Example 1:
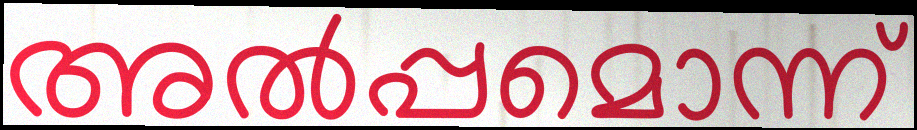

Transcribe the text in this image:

അൽപ്പമൊന്ന്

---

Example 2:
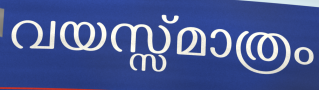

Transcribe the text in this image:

വയസ്സ്മാത്രം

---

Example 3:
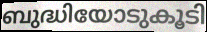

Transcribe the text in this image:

ബുദ്ധിയോടുകൂടി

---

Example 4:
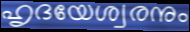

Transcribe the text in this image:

ഹൃദയേശ്വരനും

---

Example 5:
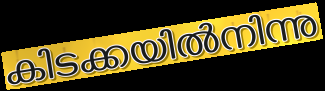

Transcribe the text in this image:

കിടക്കയിൽനിന്നു